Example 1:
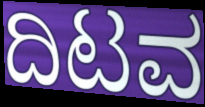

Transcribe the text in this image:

ದಿಟವ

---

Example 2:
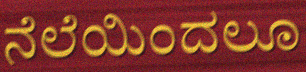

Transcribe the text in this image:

ನೆಲೆಯಿಂದಲೂ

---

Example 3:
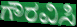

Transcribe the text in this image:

ಗೌರವಿಸಿ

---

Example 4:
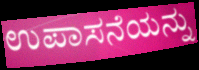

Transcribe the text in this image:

ಉಪಾಸನೆಯನ್ನು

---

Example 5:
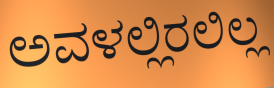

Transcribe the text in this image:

ಅವಳಲ್ಲಿರಲಿಲ್ಲ